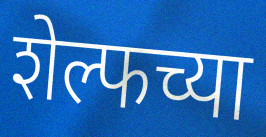
शेल्फच्या